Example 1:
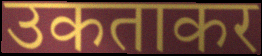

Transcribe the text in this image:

उकताकर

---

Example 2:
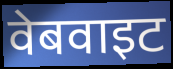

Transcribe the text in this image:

वेबवाइट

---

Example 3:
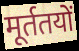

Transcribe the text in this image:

मूर्ततयों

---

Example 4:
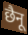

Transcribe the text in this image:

छैनू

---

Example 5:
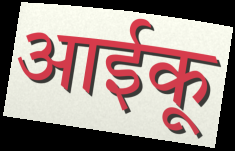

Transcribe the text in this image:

आईकू